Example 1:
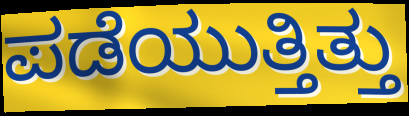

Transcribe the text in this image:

ಪಡೆಯುತ್ತಿತ್ತು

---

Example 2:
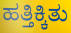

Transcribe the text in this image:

ಹತ್ತಿಕ್ಕಿತು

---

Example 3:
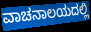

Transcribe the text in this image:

ವಾಚನಾಲಯದಲ್ಲಿ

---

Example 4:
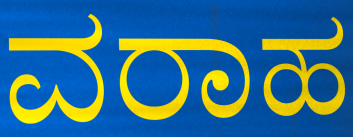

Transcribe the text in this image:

ವರಾಹ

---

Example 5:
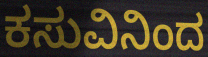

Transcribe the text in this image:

ಕಸುವಿನಿಂದ